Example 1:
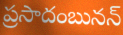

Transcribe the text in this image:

ప్రసాదంబునన్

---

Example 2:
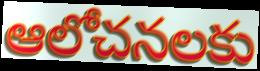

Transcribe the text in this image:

ఆలోచనలకు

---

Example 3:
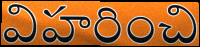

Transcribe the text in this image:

విహరించి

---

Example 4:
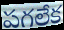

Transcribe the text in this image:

పగలేక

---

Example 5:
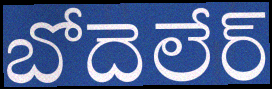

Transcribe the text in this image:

బోదెలేర్